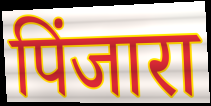
पिंजारा